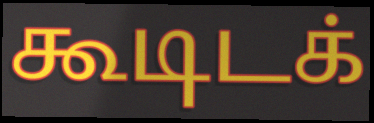
கூடிடக்